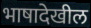
भाषादेखील